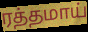
ரத்தமாய்